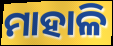
ମାହାଳି